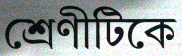
শ্রেণীটিকে